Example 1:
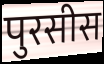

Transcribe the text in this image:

पुरसीस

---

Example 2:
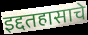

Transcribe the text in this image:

इद्दतहासाचे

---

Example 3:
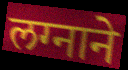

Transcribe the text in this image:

लग्नाने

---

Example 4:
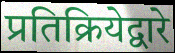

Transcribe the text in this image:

प्रतिक्रियेद्वारे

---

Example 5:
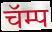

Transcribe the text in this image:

चॅम्प